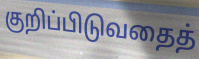
குறிப்பிடுவதைத்